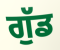
ਗੁੱਡ